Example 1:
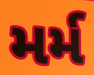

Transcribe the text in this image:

મર્મ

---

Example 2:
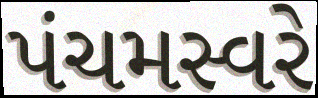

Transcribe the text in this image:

પંચમસ્વરે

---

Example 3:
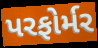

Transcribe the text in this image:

પરફોર્મર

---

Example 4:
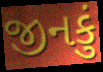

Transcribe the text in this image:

જીનકું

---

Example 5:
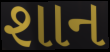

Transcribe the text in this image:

શાન